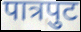
पात्रपुट